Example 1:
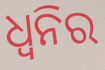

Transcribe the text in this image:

ଧ୍ବନିର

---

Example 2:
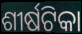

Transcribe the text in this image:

ଶୀର୍ଷଟିକା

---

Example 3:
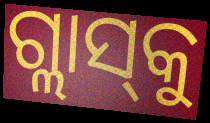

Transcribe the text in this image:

ଗ୍ଲାସ୍‌କୁ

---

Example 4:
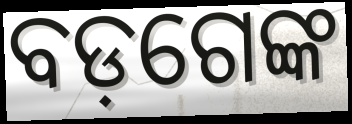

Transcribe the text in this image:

ବଡ଼ଗେଙ୍କ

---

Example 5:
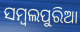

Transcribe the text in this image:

ସମ୍ବଲପୁରିଆ